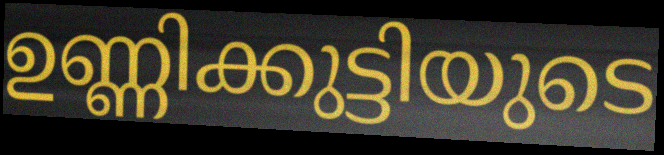
ഉണ്ണിക്കുട്ടിയുടെ